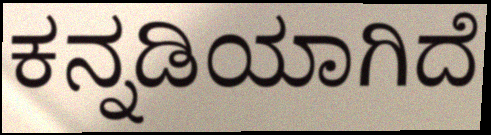
ಕನ್ನಡಿಯಾಗಿದೆ